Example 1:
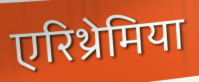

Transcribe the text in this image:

एरिथ्रेमिया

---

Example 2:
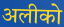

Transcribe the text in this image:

अलीको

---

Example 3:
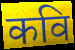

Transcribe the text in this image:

कवि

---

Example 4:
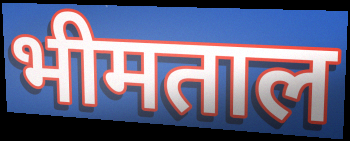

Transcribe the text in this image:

भीमताल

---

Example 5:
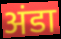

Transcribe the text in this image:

अंडा